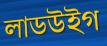
লাডউইগ